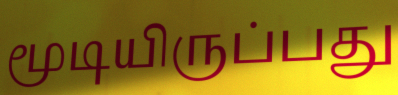
மூடியிருப்பது